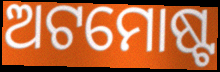
ଅଟମୋଷ୍ଟ